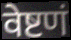
वेष्टणं